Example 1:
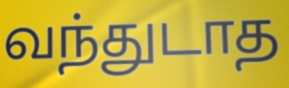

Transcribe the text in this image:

வந்துடாத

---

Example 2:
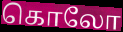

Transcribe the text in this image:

கொலோ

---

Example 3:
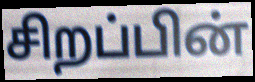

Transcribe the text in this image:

சிறப்பின்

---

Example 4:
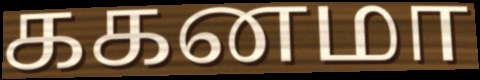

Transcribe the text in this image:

ககனமா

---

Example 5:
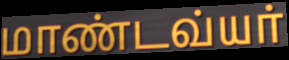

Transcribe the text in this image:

மாண்டவ்யர்